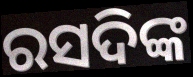
ରସଦିଙ୍କ